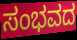
ಸಂಭವದ